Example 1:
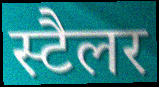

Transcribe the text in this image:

स्टैलर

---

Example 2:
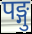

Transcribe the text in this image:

पङ्गु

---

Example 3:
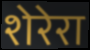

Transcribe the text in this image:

शेरेरा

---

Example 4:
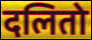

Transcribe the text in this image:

दलितो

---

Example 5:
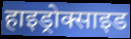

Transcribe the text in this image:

हाइड्रोक्साइड